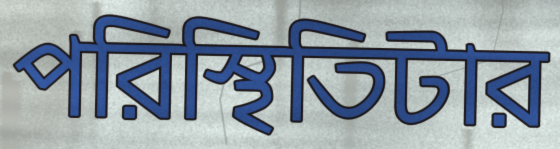
পরিস্থিতিটার